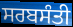
ਸਰਬਸੰਤੀ